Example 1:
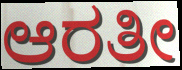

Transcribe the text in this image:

ಆರತೀ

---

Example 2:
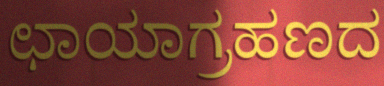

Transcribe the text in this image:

ಛಾಯಾಗ್ರಹಣದ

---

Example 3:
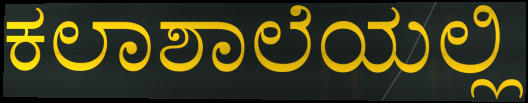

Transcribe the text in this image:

ಕಲಾಶಾಲೆಯಲ್ಲಿ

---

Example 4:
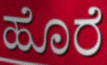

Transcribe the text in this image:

ಹೊರೆ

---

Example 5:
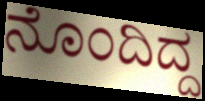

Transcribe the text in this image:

ನೊಂದಿದ್ದ